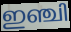
ഇഞ്ചി